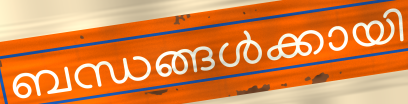
ബന്ധങ്ങൾക്കായി